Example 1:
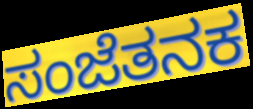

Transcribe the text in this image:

ಸಂಜೆತನಕ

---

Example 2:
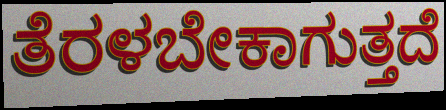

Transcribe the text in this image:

ತೆರಳಬೇಕಾಗುತ್ತದೆ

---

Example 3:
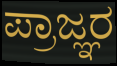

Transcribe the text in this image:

ಪ್ರಾಜ್ಞರ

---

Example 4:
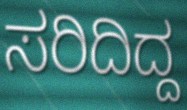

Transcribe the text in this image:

ಸರಿದಿದ್ದ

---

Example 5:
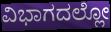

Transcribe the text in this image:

ವಿಭಾಗದಲ್ಲೋ